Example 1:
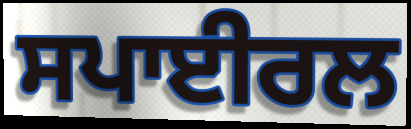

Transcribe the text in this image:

ਸਪਾਈਰਲ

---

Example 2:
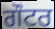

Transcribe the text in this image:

ਗੌਟਰ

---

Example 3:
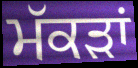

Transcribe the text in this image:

ਮੱਕੜਾਂ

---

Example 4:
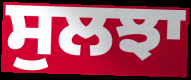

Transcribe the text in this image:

ਸੁਲਝਾ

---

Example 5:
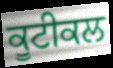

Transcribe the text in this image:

ਕੂਟੀਕਲ